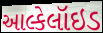
આલ્કેલૉઇડ